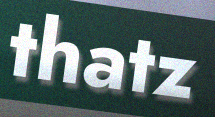
thatz